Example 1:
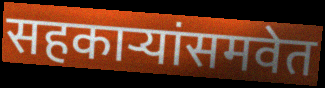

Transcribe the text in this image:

सहकाऱ्यांसमवेत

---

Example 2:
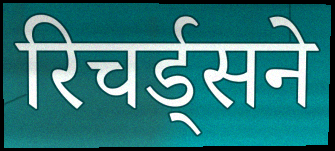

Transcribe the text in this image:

रिचर्ड्सने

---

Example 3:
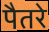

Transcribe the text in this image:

पैतरे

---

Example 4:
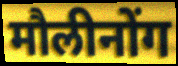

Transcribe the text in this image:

मौलीनोंग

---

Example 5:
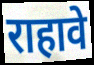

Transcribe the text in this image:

राहावे